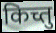
किच्तु